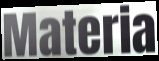
Materia